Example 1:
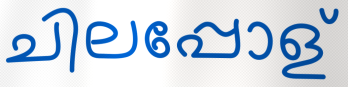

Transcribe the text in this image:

ചിലപ്പോള്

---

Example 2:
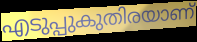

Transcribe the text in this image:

എടുപ്പുകുതിരയാണ്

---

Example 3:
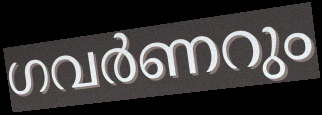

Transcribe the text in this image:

ഗവർണറും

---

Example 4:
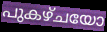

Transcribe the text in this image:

പുകഴ്ചയോ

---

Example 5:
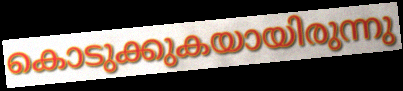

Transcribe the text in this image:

കൊടുക്കുകയായിരുന്നു